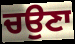
ਚਉਣਾ